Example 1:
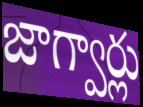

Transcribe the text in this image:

జాగ్వార్లు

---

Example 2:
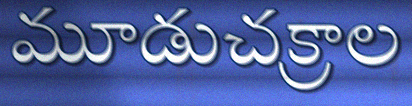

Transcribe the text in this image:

మూడుచక్రాల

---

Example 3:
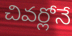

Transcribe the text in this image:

చివర్లోనే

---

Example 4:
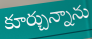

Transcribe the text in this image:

కూర్చున్నాను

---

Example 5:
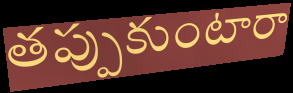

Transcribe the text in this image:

తప్పుకుంటారా